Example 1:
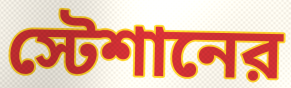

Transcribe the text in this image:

স্টেশানের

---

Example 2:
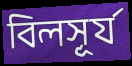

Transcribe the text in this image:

বিলসূর্য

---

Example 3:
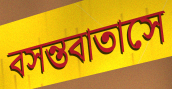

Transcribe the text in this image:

বসন্তবাতাসে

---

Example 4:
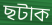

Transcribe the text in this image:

ছটাক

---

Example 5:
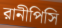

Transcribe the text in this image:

রানীপিসি